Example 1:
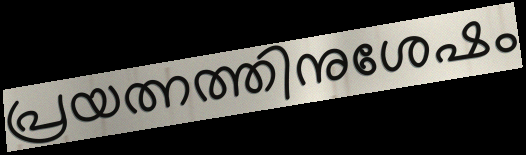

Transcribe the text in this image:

പ്രയത്നത്തിനുശേഷം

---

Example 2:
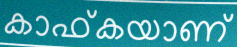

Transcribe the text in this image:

കാഫ്കയാണ്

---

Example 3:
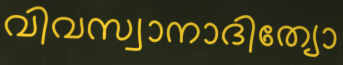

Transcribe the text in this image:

വിവസ്വാനാദിത്യോ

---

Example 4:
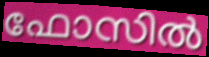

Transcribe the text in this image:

ഫോസിൽ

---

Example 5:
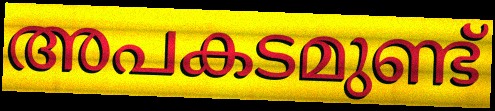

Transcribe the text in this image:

അപകടമുണ്ട്